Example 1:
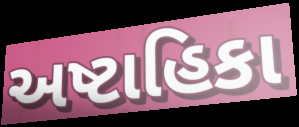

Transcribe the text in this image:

અષ્ટાહિકા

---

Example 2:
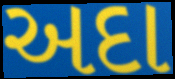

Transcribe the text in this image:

અદા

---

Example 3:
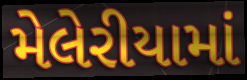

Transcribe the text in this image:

મેલેરીયામાં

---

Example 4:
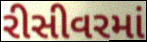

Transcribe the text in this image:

રીસીવરમાં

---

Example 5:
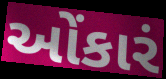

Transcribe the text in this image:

ઓંકારં